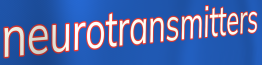
neurotransmitters